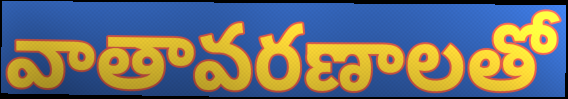
వాతావరణాలతో